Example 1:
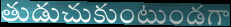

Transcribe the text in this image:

తుడుచుకుంటుండగా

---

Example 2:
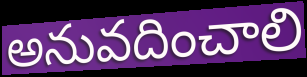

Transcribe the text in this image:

అనువదించాలి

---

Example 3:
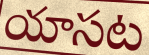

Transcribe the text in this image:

యాసట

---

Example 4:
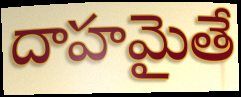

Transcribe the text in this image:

దాహమైతే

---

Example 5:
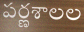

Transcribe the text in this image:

పర్ణశాలల